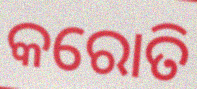
କରୋତି